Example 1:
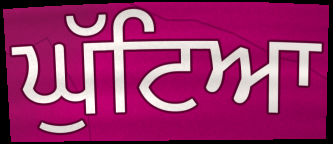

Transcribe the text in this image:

ਘੁੱਟਿਆ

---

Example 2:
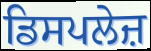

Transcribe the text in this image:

ਡਿਸਪਲੇਜ਼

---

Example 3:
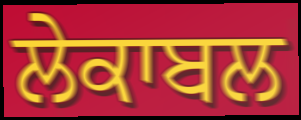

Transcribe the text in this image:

ਲੇਕਾਬਲ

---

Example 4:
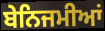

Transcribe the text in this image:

ਬੇਨਿਜਮੀਆਂ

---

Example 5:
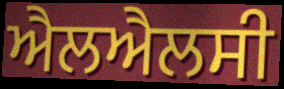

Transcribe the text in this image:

ਐਲਐਲਸੀ